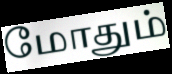
மோதும்